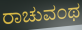
ರಾಚುವಂಥ